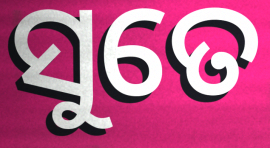
ସୁତେ